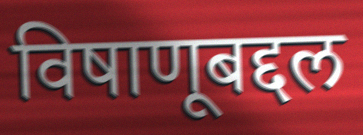
विषाणूबद्दल